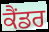
ਕੈਂਡਰ